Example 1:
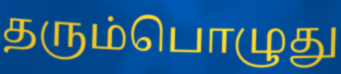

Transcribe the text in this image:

தரும்பொழுது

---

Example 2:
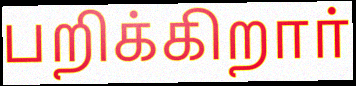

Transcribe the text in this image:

பறிக்கிறார்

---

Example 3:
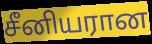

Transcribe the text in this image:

சீனியரான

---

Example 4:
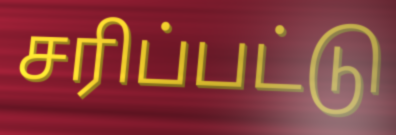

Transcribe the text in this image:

சரிப்பட்டு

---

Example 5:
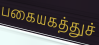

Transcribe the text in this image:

பகையகத்துச்